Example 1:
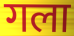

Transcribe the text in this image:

गला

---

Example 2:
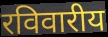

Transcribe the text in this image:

रविवारीय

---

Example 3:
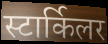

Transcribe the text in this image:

स्टार्किलर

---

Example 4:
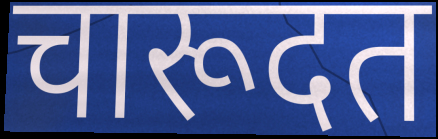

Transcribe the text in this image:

चारूदत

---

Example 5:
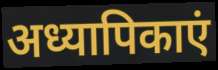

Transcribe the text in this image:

अध्यापिकाएं